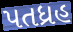
પતધ્રહ